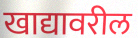
खाद्यावरील